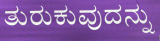
ತುರುಕುವುದನ್ನು